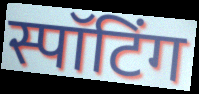
स्पॉटिंग